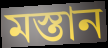
মস্তান